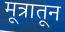
मूत्रातून